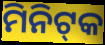
ମିନିଟ୍‍କ